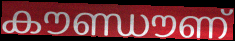
കൗണ്ഡൗണ്